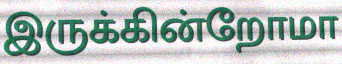
இருக்கின்றோமா